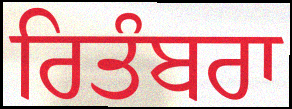
ਰਿਤੰਬਰਾ